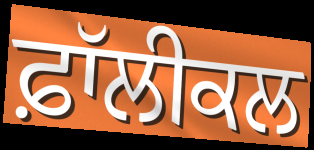
ਫ਼ਾੱਲੀਕਲ